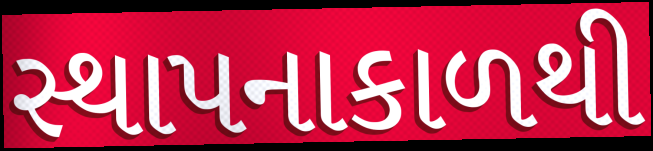
સ્થાપનાકાળથી